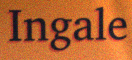
Ingale